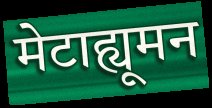
मेटाह्यूमन